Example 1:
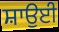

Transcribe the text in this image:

ਸ਼ਾਉਈ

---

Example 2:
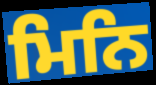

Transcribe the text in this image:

ਮਿਨਿ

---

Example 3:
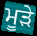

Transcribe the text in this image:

ਮੂੜੇ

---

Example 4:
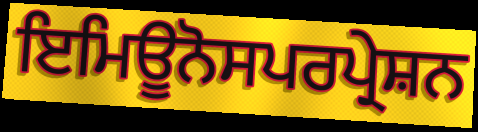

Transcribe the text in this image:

ਇਮਿਊਨੋਸਪਰਪ੍ਰੇਸ਼ਨ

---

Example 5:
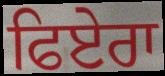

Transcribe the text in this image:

ਫਿਏਰਾ